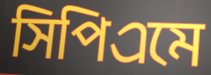
সিপিএমে